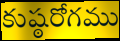
కుష్ఠరోగము